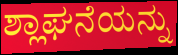
ಶ್ಲಾಘನೆಯನ್ನು